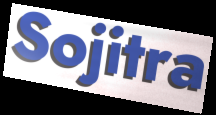
Sojitra